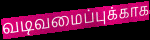
வடிவமைப்புக்காக